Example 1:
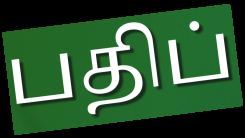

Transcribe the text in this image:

பதிப்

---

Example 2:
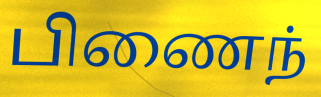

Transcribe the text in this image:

பிணைந்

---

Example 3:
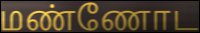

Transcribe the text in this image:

மண்ணோட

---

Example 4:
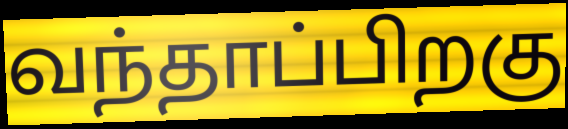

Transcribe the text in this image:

வந்தாப்பிறகு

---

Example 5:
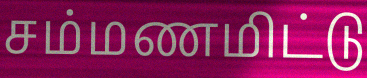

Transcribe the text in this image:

சம்மணமிட்டு